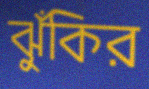
ঝুঁকির